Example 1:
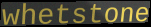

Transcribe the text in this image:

whetstone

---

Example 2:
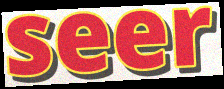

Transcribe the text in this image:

seer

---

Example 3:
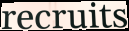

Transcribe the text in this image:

recruits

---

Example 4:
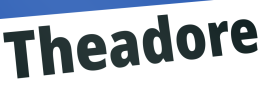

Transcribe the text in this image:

Theadore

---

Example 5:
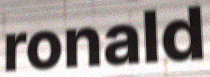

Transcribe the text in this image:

ronald